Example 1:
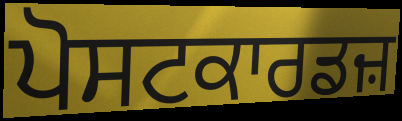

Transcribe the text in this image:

ਪੋਸਟਕਾਰਡਜ਼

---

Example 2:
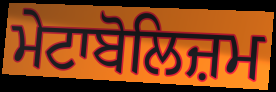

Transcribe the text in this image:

ਮੇਟਾਬੋਲਿਜ਼ਮ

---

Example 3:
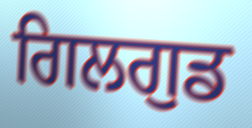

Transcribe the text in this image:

ਗਿਲਗੁਡ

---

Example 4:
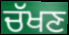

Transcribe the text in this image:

ਚੱਖਣ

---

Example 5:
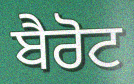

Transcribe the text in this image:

ਬੈਰੋਟ